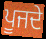
ਪੂਜਦੇ